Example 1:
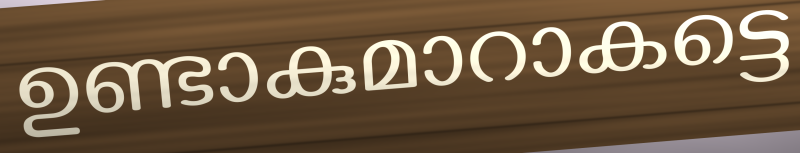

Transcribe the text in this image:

ഉണ്ടാകുമാറാകട്ടെ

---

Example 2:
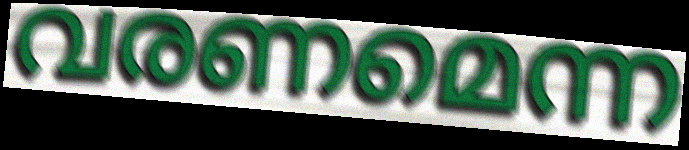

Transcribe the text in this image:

വരണമെന്ന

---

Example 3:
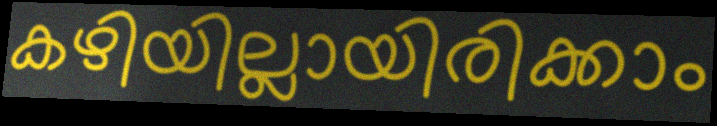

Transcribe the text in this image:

കഴിയില്ലായിരിക്കാം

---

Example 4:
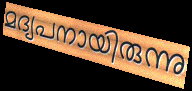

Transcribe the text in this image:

മദ്യപനായിരുന്നു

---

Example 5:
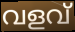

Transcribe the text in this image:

വളവ്